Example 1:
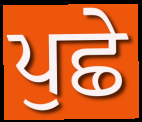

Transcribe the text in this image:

ਪੁਛੇ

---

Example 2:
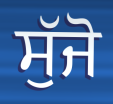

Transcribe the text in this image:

ਸੁੱਜੋ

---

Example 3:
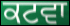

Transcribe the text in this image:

ਕਟਵਾ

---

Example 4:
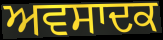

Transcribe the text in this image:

ਅਵਸਾਦਕ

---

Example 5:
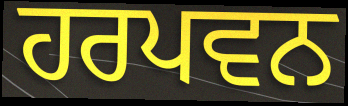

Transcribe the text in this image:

ਹਰਪਵਨ